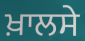
ਖ਼ਾਲਸੇ